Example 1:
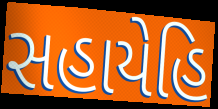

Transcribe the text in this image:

સહાયેહિ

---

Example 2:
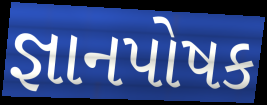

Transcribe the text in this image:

જ્ઞાનપોષક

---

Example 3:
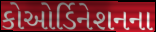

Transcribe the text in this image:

કોઓર્ડિનેશનના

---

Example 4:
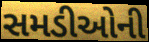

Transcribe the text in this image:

સમડીઓની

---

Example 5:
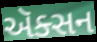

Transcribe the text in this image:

ઍક્સન